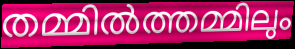
തമ്മിൽത്തമ്മിലും